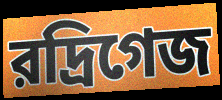
রদ্রিগেজ